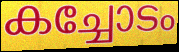
കച്ചോടം